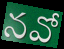
నవో